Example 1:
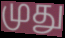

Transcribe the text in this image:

முது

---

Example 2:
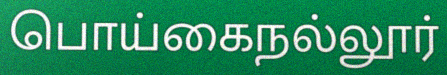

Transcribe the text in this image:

பொய்கைநல்லூர்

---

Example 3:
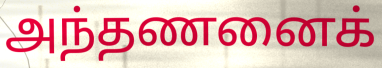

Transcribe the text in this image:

அந்தணனைக்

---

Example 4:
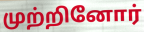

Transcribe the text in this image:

முற்றினோர்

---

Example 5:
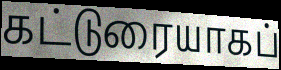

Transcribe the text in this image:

கட்டுரையாகப்